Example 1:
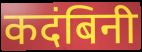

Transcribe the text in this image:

कदंबिनी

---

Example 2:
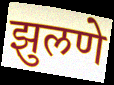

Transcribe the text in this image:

झुलणे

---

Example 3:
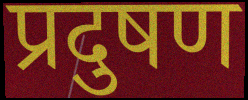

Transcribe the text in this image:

प्रदुषण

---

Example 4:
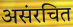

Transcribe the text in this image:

असंरचित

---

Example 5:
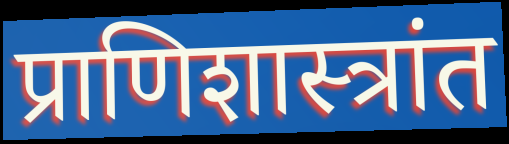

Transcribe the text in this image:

प्राणिशास्त्रांत